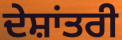
ਦੇਸ਼ਾਂਤਰੀ